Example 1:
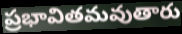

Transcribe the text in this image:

ప్రభావితమవుతారు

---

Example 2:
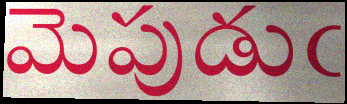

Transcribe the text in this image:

మెపుడుఁ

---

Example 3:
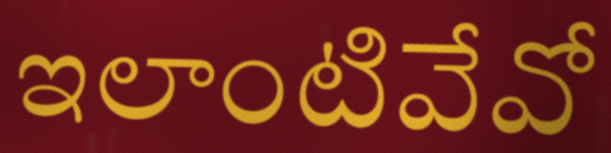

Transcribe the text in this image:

ఇలాంటివేవో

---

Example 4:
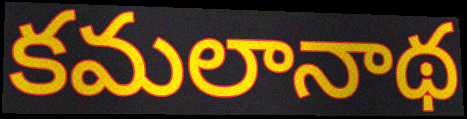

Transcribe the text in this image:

కమలానాథ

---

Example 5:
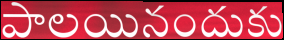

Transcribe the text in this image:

పాలయినందుకు